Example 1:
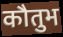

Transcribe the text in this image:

कौतुभ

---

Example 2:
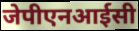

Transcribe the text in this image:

जेपीएनआईसी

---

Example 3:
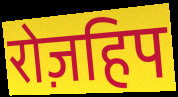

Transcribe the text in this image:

रोज़हिप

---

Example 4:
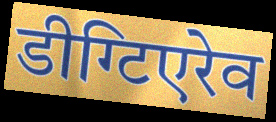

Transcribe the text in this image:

डीग्टिएरेव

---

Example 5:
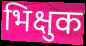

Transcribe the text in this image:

भिक्षुक